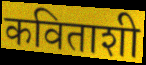
कविताशी